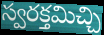
స్వరక్తమిచ్చి